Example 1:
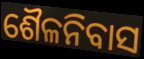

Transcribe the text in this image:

ଶୈଳନିବାସ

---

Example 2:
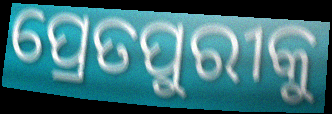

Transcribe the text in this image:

ପ୍ରେତପୁରୀକୁ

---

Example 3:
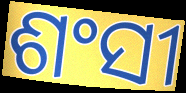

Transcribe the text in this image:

ଶଂସୀ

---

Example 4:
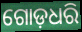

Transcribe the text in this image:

ଗୋଡ଼ଧରି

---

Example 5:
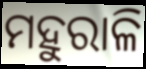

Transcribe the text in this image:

ମହୁରାଳି